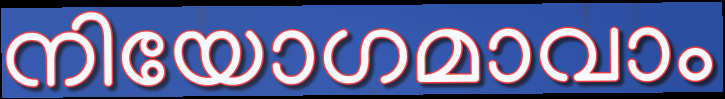
നിയോഗമാവാം